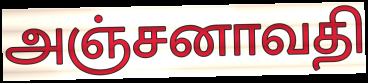
அஞ்சனாவதி